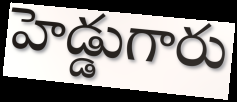
హెడ్డుగారు